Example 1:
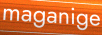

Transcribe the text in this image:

maganige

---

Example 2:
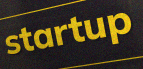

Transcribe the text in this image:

startup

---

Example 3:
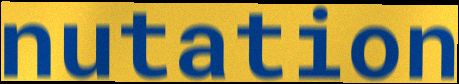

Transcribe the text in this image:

nutation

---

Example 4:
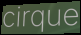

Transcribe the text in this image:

cirque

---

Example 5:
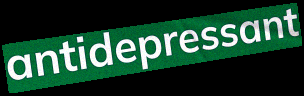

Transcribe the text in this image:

antidepressant